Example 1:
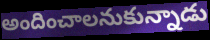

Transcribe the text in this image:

అందించాలనుకున్నాడు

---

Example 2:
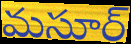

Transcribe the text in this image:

మసూర్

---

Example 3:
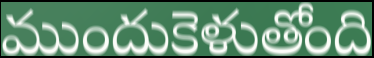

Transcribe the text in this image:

ముందుకెళుతోంది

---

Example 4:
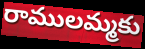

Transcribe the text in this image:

రాములమ్మకు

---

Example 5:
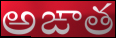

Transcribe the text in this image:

అఙాత